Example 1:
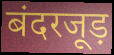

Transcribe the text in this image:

बंदरजूड़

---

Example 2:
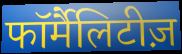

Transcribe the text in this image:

फॉर्मैलिटीज़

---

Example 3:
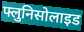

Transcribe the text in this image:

फ्लुनिसोलाइड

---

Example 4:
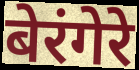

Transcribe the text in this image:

बेरंगेरे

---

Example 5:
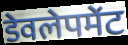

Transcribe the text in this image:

डेवलेपमेंट